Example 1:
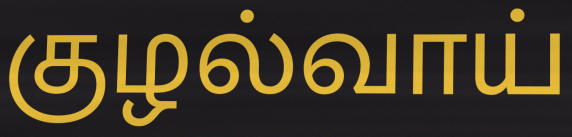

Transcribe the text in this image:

குழல்வாய்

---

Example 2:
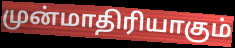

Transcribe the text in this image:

முன்மாதிரியாகும்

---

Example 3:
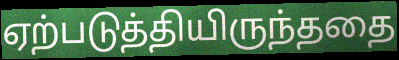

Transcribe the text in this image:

ஏற்படுத்தியிருந்ததை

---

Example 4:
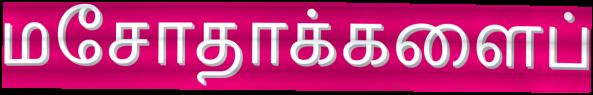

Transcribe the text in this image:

மசோதாக்களைப்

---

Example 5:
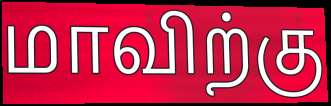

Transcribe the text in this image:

மாவிற்கு